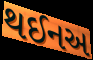
થઈનઅ